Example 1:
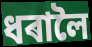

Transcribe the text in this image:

ধৰালৈ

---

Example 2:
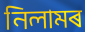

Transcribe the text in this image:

নিলামৰ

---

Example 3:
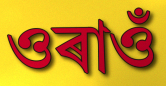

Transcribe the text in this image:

ওৰাওঁ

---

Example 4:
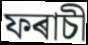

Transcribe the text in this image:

ফৰাচী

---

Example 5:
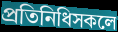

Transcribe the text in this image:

প্ৰতিনিধিসকলে